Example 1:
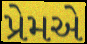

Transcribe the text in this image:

પ્રેમએ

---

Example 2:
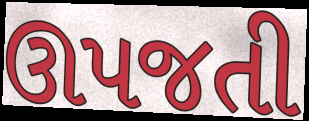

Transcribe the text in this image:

ઊપજતી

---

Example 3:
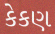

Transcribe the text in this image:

કેકણ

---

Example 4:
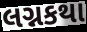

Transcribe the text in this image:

લગ્નકથા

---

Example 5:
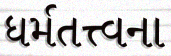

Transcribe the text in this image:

ધર્મતત્ત્વના